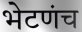
भेटणंच